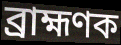
ব্ৰাহ্মণক